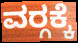
ವರ‍್ಗಕ್ಕೆ